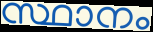
സ്ഥാനം